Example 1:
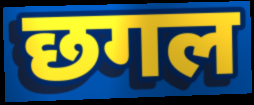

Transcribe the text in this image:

छगल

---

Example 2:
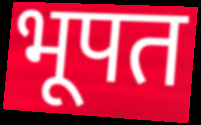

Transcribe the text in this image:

भूपत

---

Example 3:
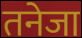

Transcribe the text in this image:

तनेजा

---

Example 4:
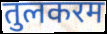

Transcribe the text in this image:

तुलकरम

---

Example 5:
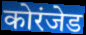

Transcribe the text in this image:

कोरंजेड